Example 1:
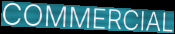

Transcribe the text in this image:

COMMERCIAL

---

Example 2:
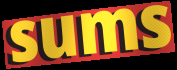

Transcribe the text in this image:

sums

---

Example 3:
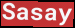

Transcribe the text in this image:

Sasay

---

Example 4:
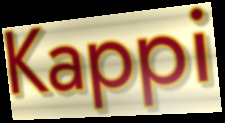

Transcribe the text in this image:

Kappi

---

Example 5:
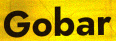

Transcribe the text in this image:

Gobar